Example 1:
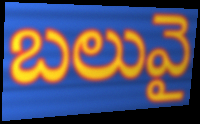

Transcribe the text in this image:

బలువై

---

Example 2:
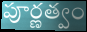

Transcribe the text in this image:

పూర్ణత్వం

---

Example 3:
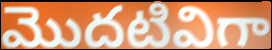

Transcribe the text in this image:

మొదటివిగా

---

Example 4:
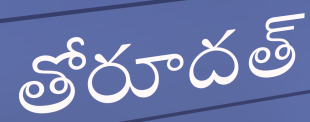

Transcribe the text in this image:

తోరూదత్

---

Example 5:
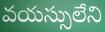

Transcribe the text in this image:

వయస్సులేని